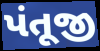
પંતૂજી